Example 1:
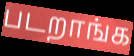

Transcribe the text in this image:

படறாங்க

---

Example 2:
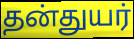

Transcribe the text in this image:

தன்துயர்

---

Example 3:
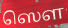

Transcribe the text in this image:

ஸௌ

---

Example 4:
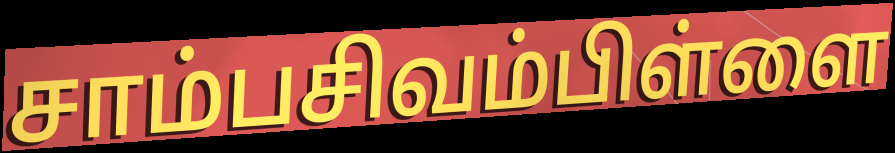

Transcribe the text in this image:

சாம்பசிவம்பிள்ளை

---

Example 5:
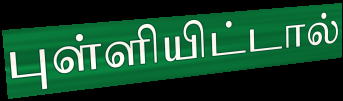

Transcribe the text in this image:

புள்ளியிட்டால்